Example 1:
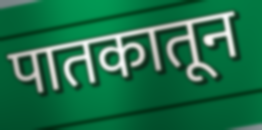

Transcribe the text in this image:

पातकातून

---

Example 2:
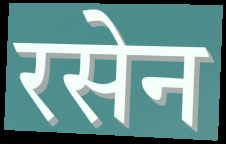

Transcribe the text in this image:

रसेन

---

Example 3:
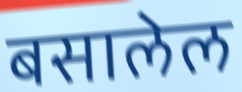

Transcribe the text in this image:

बसालेल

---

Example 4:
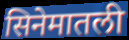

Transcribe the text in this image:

सिनेमातली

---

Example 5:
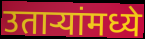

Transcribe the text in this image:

उतार्‍यांमध्ये